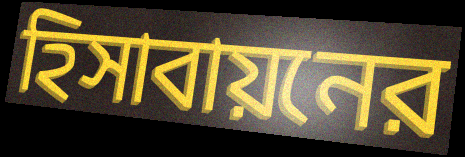
হিসাবায়নের